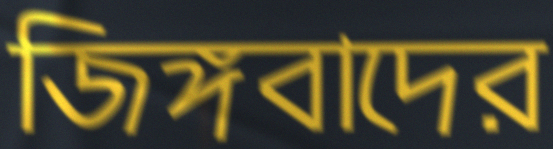
জিঙ্গবাদের